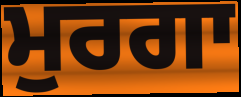
ਮੁਰਗਾ